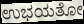
ಉಭಯತೋ